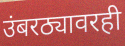
उंबरठ्यावरही